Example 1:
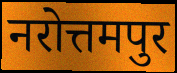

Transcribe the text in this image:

नरोत्तमपुर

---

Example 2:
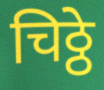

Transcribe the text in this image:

चिठ्ठे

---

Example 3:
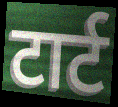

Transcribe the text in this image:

टार्ट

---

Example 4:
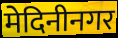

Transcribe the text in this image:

मेदिनीनगर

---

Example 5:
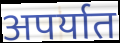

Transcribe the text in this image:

अपर्यात